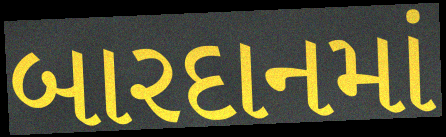
બારદાનમાં